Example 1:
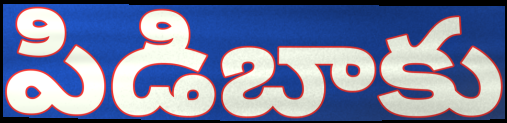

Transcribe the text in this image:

పిడిబాకు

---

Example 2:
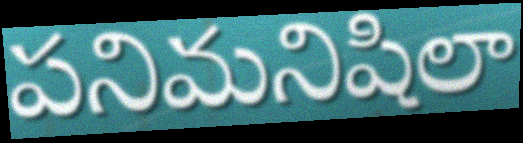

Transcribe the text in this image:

పనిమనిషిలా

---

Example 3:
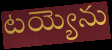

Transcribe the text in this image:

టయ్యెను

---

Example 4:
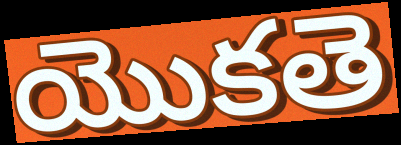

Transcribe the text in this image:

యొకతె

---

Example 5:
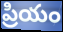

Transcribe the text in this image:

ప్రియం